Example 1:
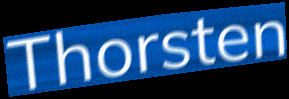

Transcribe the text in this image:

Thorsten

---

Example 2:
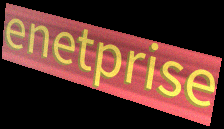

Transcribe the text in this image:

enetprise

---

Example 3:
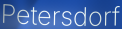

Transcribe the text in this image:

Petersdorf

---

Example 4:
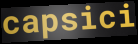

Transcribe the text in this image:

capsici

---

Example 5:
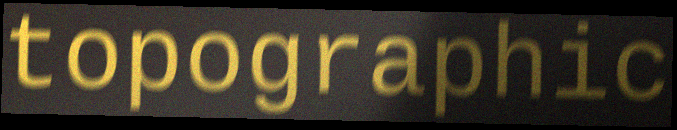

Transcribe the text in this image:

topographic